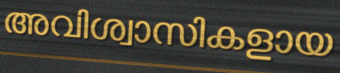
അവിശ്വാസികളായ